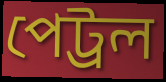
পেট্ৰল